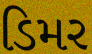
ડિમર